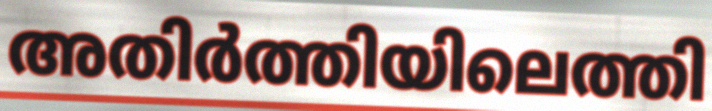
അതിർത്തിയിലെത്തി